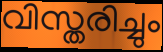
വിസ്തരിച്ചും